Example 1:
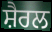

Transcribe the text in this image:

ਸ਼ੈਰਲ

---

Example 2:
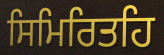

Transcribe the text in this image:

ਸਿਮਿਰਿਤਹਿ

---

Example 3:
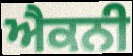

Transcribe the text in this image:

ਐਕਨੀ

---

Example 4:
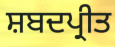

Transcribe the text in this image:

ਸ਼ਬਦਪ੍ਰੀਤ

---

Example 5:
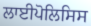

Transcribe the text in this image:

ਲਾਈਪੋਲਿਸਿਸ